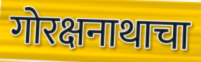
गोरक्षनाथाचा